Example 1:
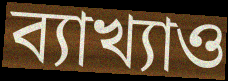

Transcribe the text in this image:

ব্যাখ্যাও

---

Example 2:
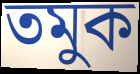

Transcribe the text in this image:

তমুক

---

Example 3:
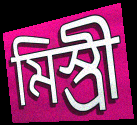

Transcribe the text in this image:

মিস্ত্ৰী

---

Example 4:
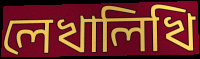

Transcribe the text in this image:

লেখালিখি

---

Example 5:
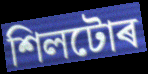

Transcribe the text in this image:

শিলটোৰ